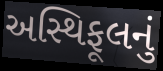
અસ્થિફૂલનું